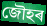
জৌহৰ